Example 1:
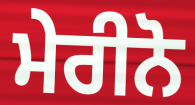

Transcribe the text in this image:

ਮੇਰੀਨੋ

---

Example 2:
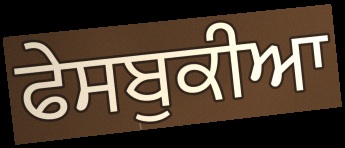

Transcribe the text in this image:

ਫੇਸਬੁਕੀਆ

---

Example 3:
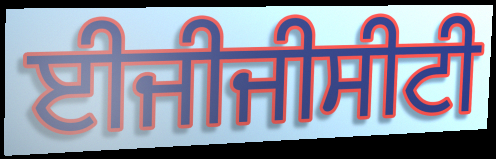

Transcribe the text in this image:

ਈਜੀਜੀਸੀਟੀ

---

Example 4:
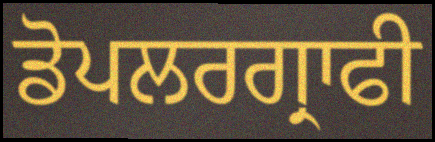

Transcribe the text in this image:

ਡੋਪਲਰਗ੍ਰਾਫੀ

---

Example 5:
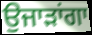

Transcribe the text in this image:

ਉਜਾੜਾਂਗਾ